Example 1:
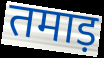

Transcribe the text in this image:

तमाड़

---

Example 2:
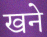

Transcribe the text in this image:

खने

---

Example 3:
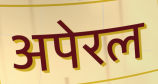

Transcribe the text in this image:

अपेरल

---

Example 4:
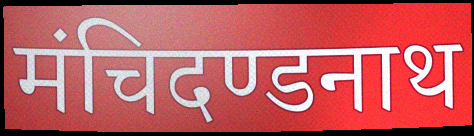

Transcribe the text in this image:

मंचिदण्डनाथ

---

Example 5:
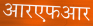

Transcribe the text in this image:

आरएफआर